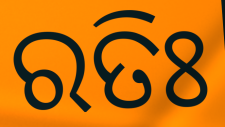
ରତିଃ